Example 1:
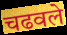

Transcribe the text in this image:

चढवले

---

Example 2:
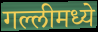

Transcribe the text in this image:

गल्लीमध्ये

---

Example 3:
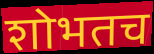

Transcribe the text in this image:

शोभतच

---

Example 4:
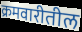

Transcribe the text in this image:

क्रमवारीतील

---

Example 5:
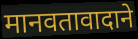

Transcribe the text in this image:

मानवतावादाने